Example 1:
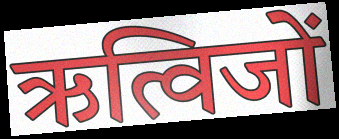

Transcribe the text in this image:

ऋत्विजों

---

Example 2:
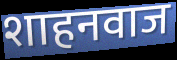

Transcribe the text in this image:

शाहनवाज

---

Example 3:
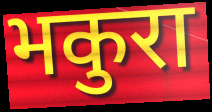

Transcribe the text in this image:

भकुरा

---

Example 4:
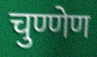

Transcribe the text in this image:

चुण्णेण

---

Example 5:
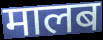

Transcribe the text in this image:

मालब